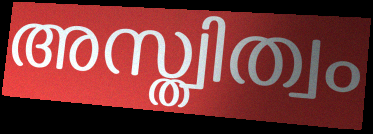
അസ്ത്വിത്വം